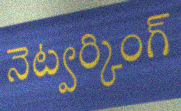
నెట్వర్కింగ్